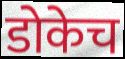
डोकेच